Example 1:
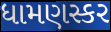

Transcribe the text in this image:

ધામણસ્કર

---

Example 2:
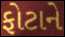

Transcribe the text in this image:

ફોટાને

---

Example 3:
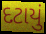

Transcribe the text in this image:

દટાયું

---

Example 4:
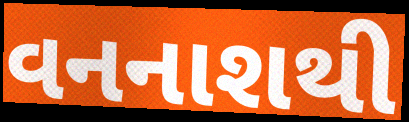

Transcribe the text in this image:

વનનાશથી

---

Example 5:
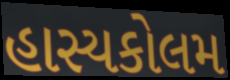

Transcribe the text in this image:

હાસ્યકોલમ